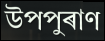
উপপুৰাণ